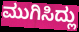
ಮುಗಿಸಿದ್ಲು